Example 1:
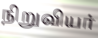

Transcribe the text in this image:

நிறுவியர்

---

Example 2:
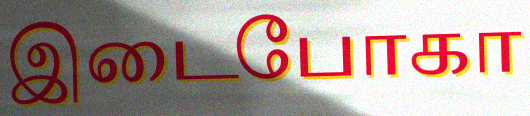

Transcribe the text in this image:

இடைபோகா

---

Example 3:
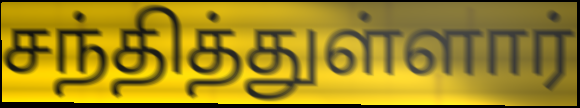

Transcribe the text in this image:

சந்தித்துள்ளார்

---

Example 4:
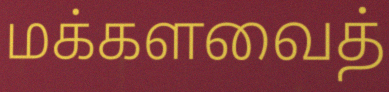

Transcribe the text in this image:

மக்களவைத்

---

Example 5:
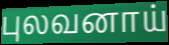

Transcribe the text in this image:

புலவனாய்